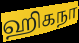
ஹிகநா